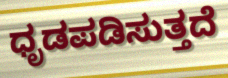
ಧೃಡಪಡಿಸುತ್ತದೆ